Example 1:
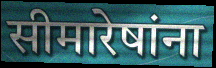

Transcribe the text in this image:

सीमारेषांना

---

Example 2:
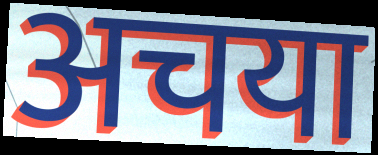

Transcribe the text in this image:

अचया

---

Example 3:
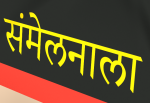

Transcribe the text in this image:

संमेलनाला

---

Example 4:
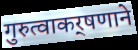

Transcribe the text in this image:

गुरुत्वाकर्षणाने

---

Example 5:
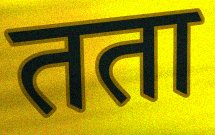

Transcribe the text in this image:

तता